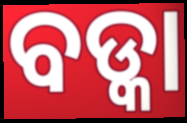
ବଡ୍କା